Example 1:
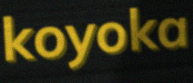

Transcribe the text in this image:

koyoka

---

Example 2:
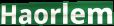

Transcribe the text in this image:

Haorlem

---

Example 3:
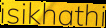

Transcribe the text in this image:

isikhathi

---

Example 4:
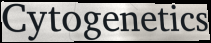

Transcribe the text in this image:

Cytogenetics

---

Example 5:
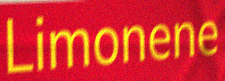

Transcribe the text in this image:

Limonene